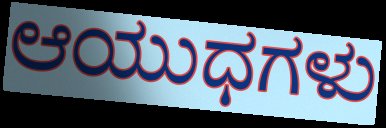
ಆಯುಧಗಳು